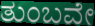
ತುಂಬವೇ